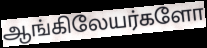
ஆங்கிலேயர்களோ